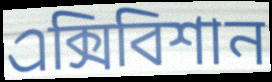
এক্সিবিশান